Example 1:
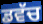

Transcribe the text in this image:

ਡਵੱਚ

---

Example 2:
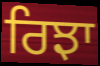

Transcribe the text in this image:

ਰਿਝਾ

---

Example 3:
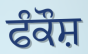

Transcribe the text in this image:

ਫੰਕੌਸ਼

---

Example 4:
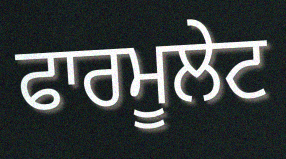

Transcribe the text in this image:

ਫਾਰਮੂਲੇਟ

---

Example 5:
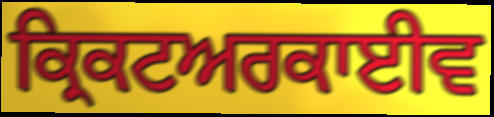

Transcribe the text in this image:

ਕ੍ਰਿਕਟਅਰਕਾਈਵ